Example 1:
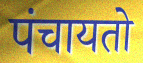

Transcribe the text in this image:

पंचायतो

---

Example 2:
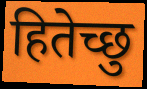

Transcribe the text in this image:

हितेच्छु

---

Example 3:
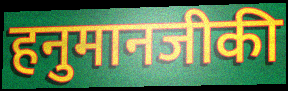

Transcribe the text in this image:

हनुमानजीकी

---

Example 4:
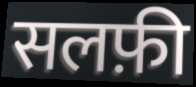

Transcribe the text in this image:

सलफ़ी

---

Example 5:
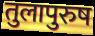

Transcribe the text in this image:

तुलापुरुष